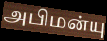
அபிமன்யு